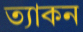
ত্যাকন